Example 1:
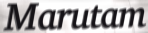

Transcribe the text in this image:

Marutam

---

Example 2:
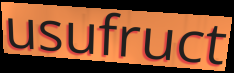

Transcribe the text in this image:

usufruct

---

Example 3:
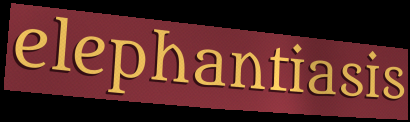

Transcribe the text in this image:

elephantiasis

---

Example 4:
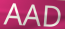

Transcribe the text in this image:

AAD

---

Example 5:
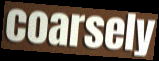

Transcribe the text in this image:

coarsely